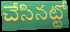
చేసినట్టో